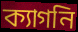
ক্যাগনি